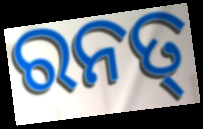
ରନତ୍